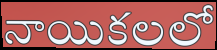
నాయికలలో